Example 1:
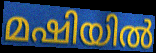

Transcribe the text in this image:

മഷിയിൽ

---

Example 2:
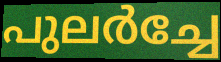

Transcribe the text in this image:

പുലർച്ചേ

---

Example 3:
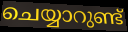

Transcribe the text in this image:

ചെയ്യാറുണ്ട്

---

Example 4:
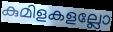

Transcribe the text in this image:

കുമിളകളല്ലോ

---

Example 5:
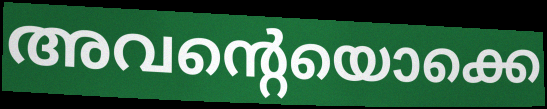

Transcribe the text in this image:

അവന്റെയൊക്കെ